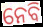
ନେବି